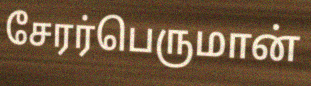
சேரர்பெருமான்